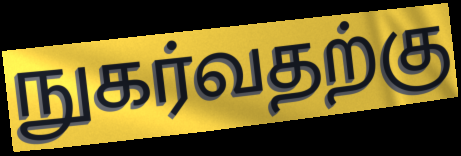
நுகர்வதற்கு